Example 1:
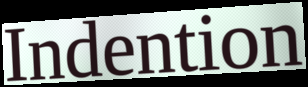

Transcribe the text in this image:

Indention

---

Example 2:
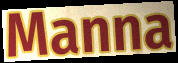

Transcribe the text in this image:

Manna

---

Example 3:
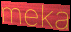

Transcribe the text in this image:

meka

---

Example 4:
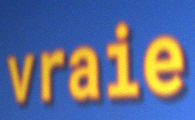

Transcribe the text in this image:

vraie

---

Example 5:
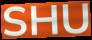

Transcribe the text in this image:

SHU